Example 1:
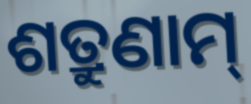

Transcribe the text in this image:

ଶତ୍ରୁଣାମ୍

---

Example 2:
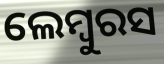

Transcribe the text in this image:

ଲେମ୍ବୁରସ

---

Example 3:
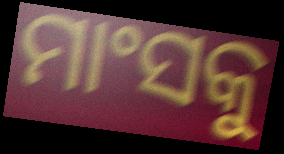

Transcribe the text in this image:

ମାଂସକୁ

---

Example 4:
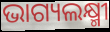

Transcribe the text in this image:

ଭାଗ୍ୟଲକ୍ଷ୍ମୀ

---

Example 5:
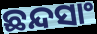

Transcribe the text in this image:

ଛନ୍ଦସାଂ